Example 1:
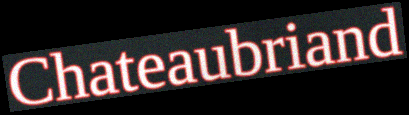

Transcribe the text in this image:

Chateaubriand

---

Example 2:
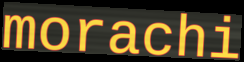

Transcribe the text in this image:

morachi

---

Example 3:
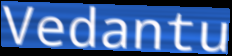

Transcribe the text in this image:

Vedantu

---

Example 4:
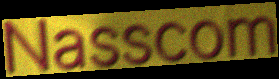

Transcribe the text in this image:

Nasscom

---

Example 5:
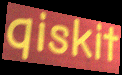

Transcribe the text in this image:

qiskit